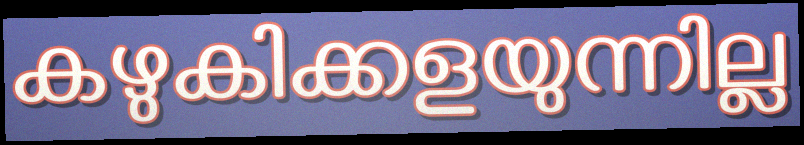
കഴുകിക്കളയുന്നില്ല